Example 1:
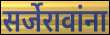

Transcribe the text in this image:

सर्जेरावांना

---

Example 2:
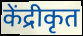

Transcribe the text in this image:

केंद्रीकृत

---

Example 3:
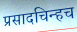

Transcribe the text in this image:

प्रसादचिन्हच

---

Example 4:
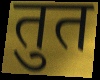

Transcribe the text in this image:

तुत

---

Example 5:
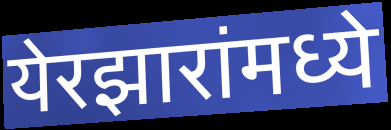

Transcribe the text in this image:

येरझारांमध्ये